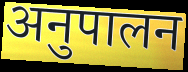
अनुपालन